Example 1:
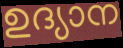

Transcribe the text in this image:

ഉദ്യാന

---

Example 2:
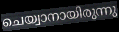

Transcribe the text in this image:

ചെയ്വാനായിരുന്നു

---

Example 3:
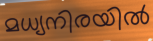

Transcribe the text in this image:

മധ്യനിരയിൽ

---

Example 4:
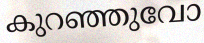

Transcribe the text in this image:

കുറഞ്ഞുവോ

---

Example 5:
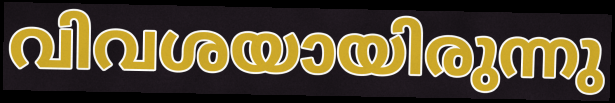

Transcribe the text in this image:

വിവശയായിരുന്നു